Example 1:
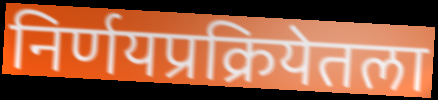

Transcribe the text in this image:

निर्णयप्रक्रियेतला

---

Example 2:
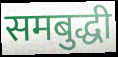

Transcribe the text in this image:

समबुद्धी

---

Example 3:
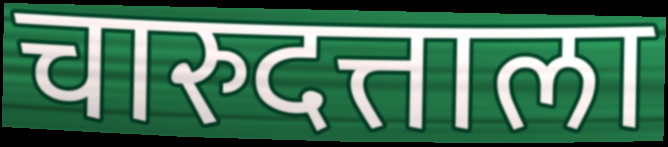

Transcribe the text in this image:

चारुदत्ताला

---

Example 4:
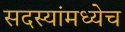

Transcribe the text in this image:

सदस्यांमध्येच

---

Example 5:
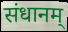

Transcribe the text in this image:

संधानम्